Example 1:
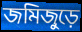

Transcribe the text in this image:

জমিজুড়ে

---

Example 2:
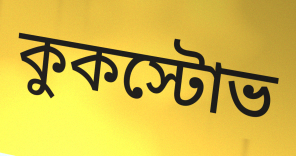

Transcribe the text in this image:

কুকস্টোভ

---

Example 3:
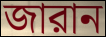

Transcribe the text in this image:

জারান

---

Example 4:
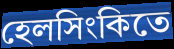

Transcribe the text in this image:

হেলসিংকিতে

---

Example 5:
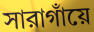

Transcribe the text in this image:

সারাগাঁয়ে